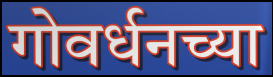
गोवर्धनच्या